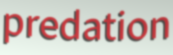
predation